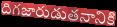
దిగజారుడుతనానికి